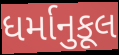
ધર્માનુકૂલ